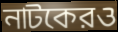
নাটকেরও